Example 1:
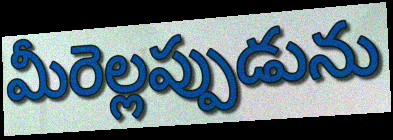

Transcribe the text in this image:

మీరెల్లప్పుడును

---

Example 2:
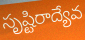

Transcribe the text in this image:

సృష్టిరాద్యేవ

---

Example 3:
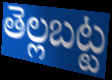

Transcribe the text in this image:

తెల్లబట్ట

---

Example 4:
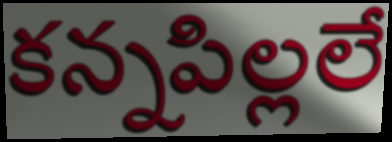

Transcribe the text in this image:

కన్నపిల్లలే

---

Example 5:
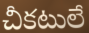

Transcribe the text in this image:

చీకటులే